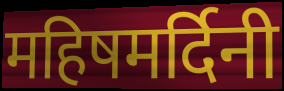
महिषमर्दिनी